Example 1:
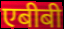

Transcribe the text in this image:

एबीबी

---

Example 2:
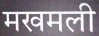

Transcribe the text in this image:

मखमली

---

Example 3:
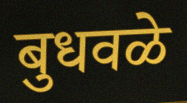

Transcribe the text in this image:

बुधवळे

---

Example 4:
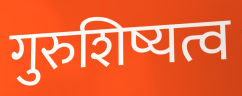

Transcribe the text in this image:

गुरुशिष्यत्व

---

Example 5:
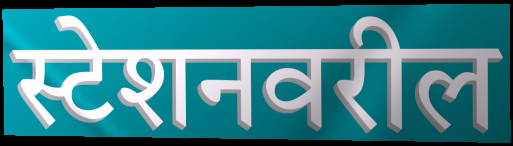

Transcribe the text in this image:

स्टेशनवरील